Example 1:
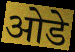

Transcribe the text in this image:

ओडे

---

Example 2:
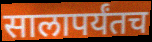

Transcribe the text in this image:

सालापर्यंतच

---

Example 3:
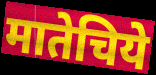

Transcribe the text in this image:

मातेचिये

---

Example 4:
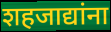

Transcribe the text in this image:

शहजाद्यांना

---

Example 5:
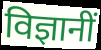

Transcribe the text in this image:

विज्ञानीं